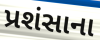
પ્રશંસાના